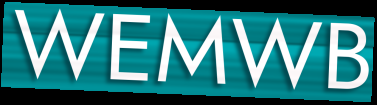
WEMWB